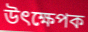
উৎক্ষেপক